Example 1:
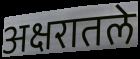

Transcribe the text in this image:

अक्षरातले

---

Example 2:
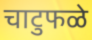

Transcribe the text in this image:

चाटुफळे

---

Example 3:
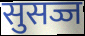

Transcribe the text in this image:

सुसज्ज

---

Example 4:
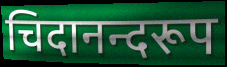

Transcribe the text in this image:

चिदानन्दरूप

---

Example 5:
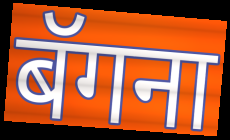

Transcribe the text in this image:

बॅगना